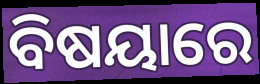
ବିଷୟାରେ